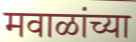
मवाळांच्या